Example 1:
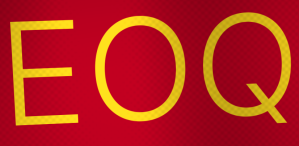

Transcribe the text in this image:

EOQ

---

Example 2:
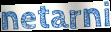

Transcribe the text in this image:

netarni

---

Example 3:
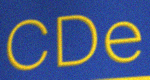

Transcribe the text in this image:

CDe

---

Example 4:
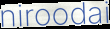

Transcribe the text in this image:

niroodai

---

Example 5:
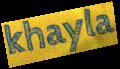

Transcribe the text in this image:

khayla